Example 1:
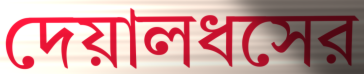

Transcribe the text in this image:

দেয়ালধসের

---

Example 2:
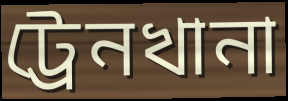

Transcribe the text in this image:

ট্রেনখানা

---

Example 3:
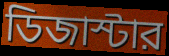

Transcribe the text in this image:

ডিজাস্টার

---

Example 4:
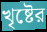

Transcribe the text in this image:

খৃষ্টের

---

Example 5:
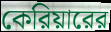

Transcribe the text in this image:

কেরিয়ারের